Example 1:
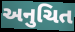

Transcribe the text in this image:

અનુચિત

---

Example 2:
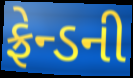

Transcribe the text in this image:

ફ્રેન્ડની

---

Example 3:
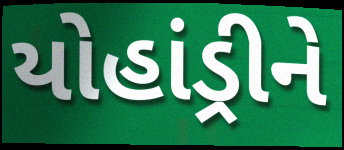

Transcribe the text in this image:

યોહાંડ્રીને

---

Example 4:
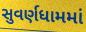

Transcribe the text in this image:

સુવર્ણધામમાં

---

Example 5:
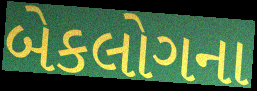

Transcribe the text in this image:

બેકલોગના